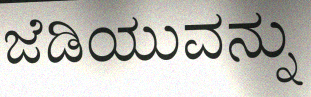
ಜೆಡಿಯುವನ್ನು